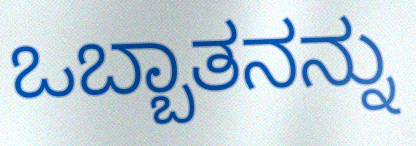
ಒಬ್ಬಾತನನ್ನು